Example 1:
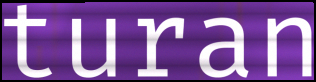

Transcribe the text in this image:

turan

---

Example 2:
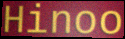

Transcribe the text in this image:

Hinoo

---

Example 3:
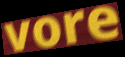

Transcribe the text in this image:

vore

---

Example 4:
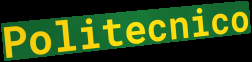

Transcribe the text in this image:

Politecnico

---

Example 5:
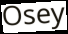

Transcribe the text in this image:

Osey